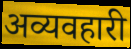
अव्यवहारी